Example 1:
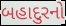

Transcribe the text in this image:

બહાદુરનો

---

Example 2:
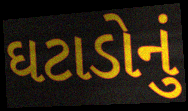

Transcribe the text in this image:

ઘટાડોનું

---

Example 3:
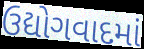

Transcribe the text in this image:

ઉદ્યોગવાદમાં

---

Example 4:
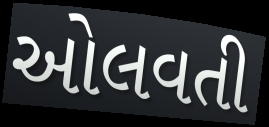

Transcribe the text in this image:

ઓલવતી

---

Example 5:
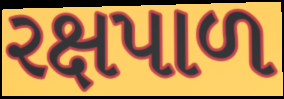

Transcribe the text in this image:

રક્ષપાળ